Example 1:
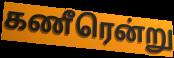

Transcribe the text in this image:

கணீரென்று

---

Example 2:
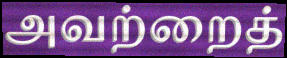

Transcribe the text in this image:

அவற்றைத்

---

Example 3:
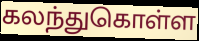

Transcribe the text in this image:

கலந்துகொள்ள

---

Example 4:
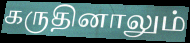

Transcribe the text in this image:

கருதினாலும்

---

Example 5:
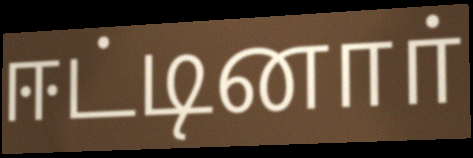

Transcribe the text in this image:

ஈட்டினார்